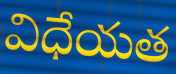
విధేయత